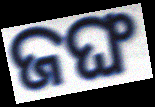
ଜଙ୍ଘ